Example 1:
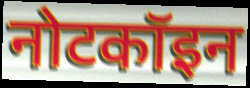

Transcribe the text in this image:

नोटकॉइन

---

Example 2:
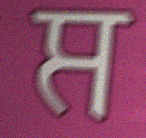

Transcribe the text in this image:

प्त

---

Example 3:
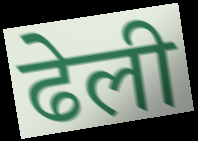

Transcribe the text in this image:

ढेली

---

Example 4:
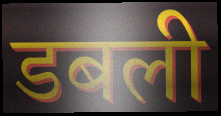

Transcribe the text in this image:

डबली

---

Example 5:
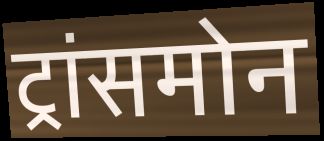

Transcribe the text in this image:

ट्रांसमोन